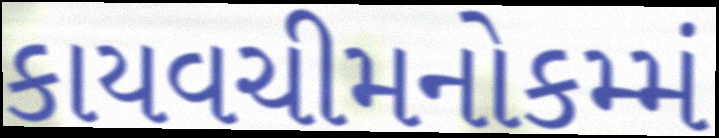
કાયવચીમનોકમ્મં